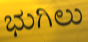
ಭುಗಿಲು